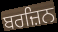
ਬਰਜ਼ਿਨ